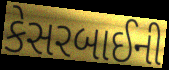
કેસરબાઈની